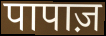
पापाज़